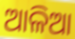
ଆଳିଆ